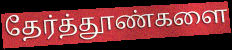
தேர்த்தூண்களை